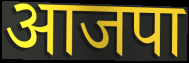
आजपा